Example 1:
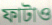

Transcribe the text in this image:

ফাটাও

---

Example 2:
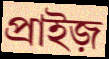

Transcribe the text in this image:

প্রাইজ়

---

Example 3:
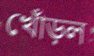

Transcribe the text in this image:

খোঁড়ল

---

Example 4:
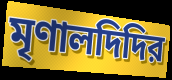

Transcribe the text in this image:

মৃণালদিদির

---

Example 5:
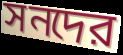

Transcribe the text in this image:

সনদের